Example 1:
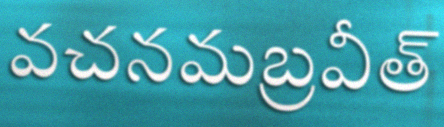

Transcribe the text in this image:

వచనమబ్రవీత్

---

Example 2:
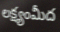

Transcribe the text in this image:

లక్ష్యంమీద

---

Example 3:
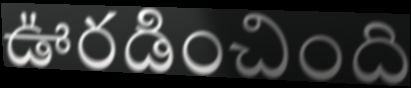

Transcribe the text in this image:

ఊరడించింది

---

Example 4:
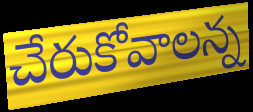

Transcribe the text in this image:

చేరుకోవాలన్న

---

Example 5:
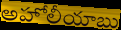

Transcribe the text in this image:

అహోలీయాబు